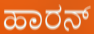
ಹಾರನ್